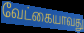
வேட்கையாவது